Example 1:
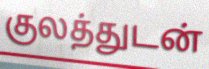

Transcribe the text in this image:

குலத்துடன்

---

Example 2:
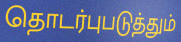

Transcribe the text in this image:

தொடர்புபடுத்தும்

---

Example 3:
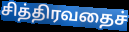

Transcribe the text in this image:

சித்திரவதைச்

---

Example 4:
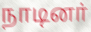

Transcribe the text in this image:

நாடினர்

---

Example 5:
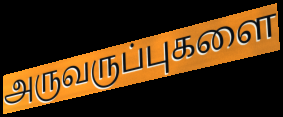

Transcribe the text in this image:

அருவருப்புகளை